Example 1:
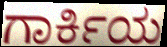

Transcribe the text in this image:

ಗಾರ್ಕಿಯ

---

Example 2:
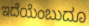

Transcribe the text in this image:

ಇದೆಯೆಂಬುದೂ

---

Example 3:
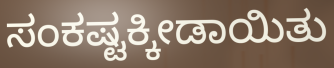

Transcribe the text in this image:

ಸಂಕಷ್ಟಕ್ಕೀಡಾಯಿತು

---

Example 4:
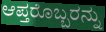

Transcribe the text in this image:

ಆಪ್ತರೊಬ್ಬರನ್ನು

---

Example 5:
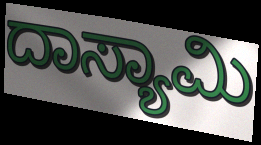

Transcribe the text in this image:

ದಾಸ್ಯಾಮಿ